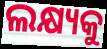
ଲକ୍ଷ୍ୟକୁ